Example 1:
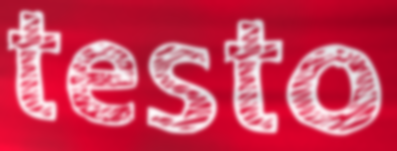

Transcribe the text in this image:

testo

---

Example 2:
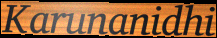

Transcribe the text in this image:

Karunanidhi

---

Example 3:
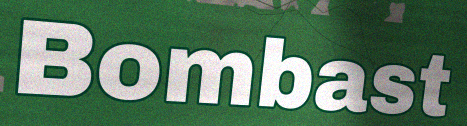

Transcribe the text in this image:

Bombast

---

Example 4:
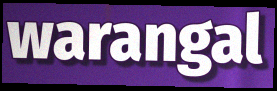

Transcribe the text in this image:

warangal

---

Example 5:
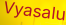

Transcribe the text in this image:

Vyasalu